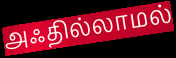
அஃதில்லாமல்